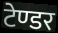
टेण्‍डर